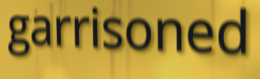
garrisoned